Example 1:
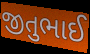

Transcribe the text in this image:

જીતુભાઈ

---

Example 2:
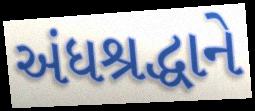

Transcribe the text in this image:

અંધશ્રદ્ધાને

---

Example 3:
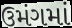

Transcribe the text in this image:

ઉમંગમાં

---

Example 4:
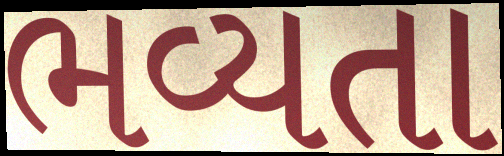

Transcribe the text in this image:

ભવ્યતા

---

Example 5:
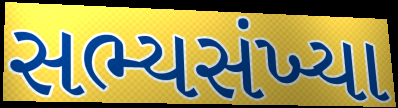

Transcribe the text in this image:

સભ્યસંખ્યા